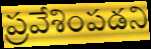
ప్రవేశింపడని